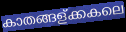
കാതങ്ങള്ക്കകലെ